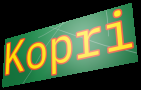
Kopri